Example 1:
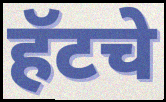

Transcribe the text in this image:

हॅटचे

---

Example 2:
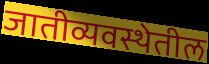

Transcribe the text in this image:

जातीव्यवस्थेतील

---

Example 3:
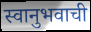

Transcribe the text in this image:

स्वानुभवाची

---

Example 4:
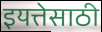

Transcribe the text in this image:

इयत्तेसाठी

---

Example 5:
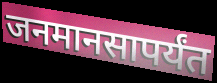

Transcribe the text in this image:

जनमानसापर्यंत